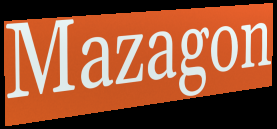
Mazagon